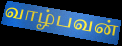
வாழ்பவன்